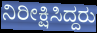
ನಿರೀಕ್ಷಿಸಿದ್ದರು